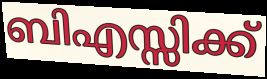
ബിഎസ്സിക്ക്